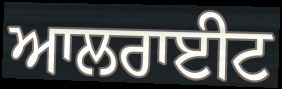
ਆਲਰਾਈਟ